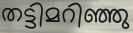
തട്ടിമറിഞ്ഞു